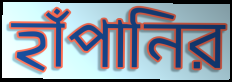
হাঁপানির